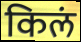
किलं